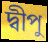
দ্বীপু